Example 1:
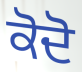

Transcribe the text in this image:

ਕੋਦੋ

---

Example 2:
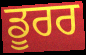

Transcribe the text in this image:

ਡੂਰਰ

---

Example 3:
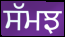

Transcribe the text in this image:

ਸੱਮਝ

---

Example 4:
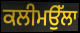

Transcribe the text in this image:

ਕਲੀਮਉੱਲਾ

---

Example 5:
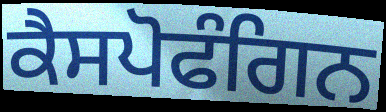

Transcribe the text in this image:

ਕੈਸਪੋਫੰਗਿਨ